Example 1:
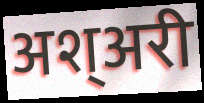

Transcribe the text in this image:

अश्अरी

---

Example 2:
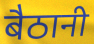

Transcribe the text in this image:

बैठानी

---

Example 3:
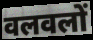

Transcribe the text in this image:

वलवलों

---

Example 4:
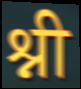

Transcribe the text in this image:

श्नी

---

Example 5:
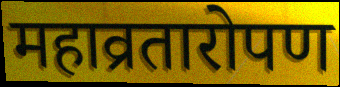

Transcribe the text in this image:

महाव्रतारोपण